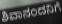
ಶಿವಾನಂದನಿಗೆ